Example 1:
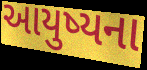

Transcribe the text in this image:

આયુષ્યના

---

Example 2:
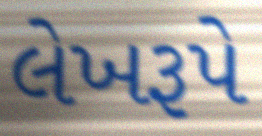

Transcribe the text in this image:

લેખરૂપે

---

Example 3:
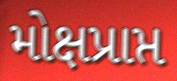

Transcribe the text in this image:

મોક્ષપ્રાપ્ત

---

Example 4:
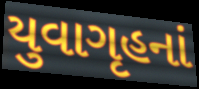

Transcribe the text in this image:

યુવાગૃહનાં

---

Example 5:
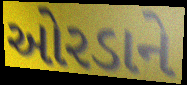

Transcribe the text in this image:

ઓરડાને